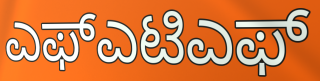
ಎಫ್ಎಟಿಎಫ್